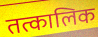
तत्कालिक